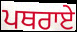
ਪਥਰਾਏ